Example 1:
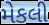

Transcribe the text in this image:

મેકલી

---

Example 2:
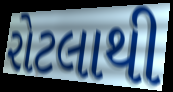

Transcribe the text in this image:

રોટલાથી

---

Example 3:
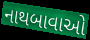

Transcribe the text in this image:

નાથબાવાઓ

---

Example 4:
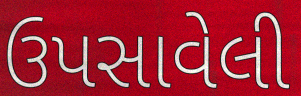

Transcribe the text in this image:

ઉપસાવેલી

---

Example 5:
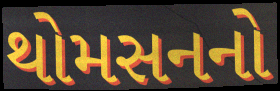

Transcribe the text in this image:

થોમસનનો